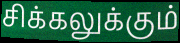
சிக்கலுக்கும்